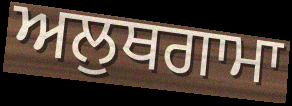
ਅਲੁਥਗਾਮਾ